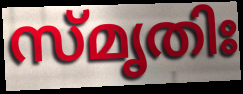
സ്മൃതിഃ